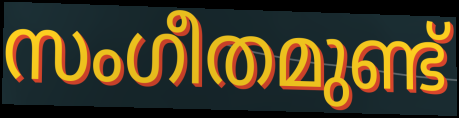
സംഗീതമുണ്ട്